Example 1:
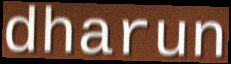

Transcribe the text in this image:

dharun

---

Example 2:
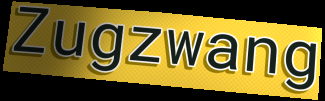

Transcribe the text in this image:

Zugzwang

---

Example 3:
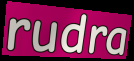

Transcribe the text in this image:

rudra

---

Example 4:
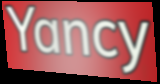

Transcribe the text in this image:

Yancy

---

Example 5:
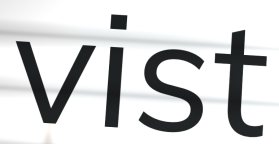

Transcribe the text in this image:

vist